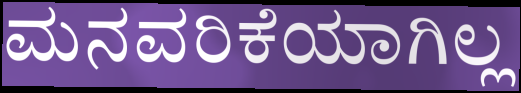
ಮನವರಿಕೆಯಾಗಿಲ್ಲ